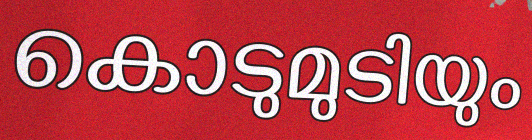
കൊടുമുടിയും